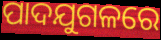
ପାଦଯୁଗଳରେ